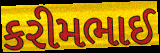
કરીમભાઈ